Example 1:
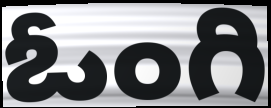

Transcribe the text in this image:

ఓంగి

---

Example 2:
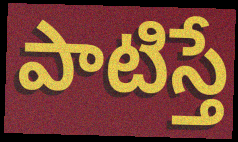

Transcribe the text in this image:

పాటిస్తే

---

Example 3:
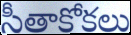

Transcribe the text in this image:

సీతాకోకలు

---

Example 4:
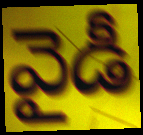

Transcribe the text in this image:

వైడీ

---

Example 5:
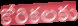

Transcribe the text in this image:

కోరికలకు